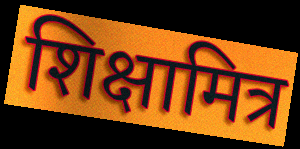
शिक्षामित्र